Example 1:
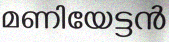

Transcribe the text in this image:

മണിയേട്ടൻ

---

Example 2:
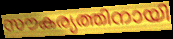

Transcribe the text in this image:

സൗകര്യത്തിനായി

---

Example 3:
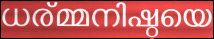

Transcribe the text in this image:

ധര്മ്മനിഷ്ഠയെ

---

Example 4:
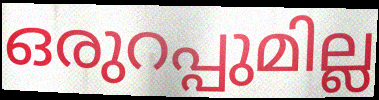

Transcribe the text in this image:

ഒരുറപ്പുമില്ല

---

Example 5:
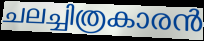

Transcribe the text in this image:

ചലച്ചിത്രകാരൻ